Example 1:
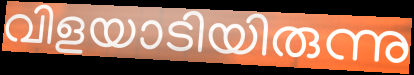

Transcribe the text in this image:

വിളയാടിയിരുന്നു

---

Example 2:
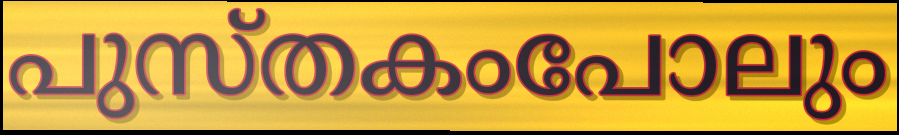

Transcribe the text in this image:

പുസ്തകംപോലും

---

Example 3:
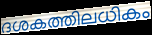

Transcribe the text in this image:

ദശകത്തിലധികം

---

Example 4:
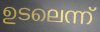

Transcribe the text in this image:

ഉടലെന്ന്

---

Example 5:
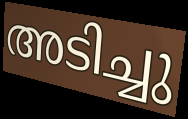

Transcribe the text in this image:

അടിച്ചു